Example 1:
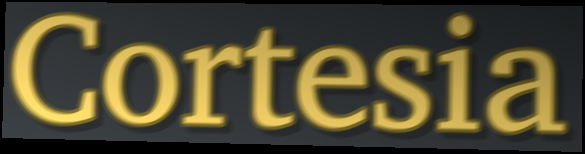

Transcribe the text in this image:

Cortesia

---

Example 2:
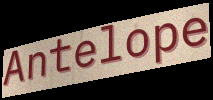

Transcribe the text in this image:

Antelope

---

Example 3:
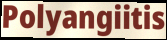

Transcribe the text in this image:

Polyangiitis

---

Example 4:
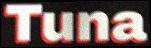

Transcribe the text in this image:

Tuna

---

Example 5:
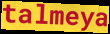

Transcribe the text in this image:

talmeya